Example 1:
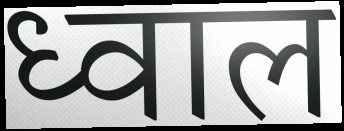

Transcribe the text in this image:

ध्वाल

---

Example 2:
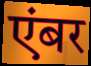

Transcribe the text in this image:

एंबर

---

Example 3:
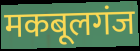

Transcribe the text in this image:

मकबूलगंज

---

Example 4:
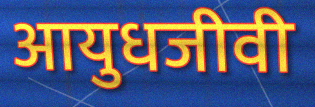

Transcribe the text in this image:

आयुधजीवी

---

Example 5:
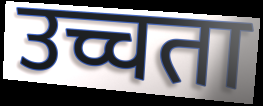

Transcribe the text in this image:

उच्चता